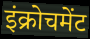
इंक्रोचमेंट